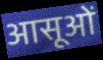
आसूओं